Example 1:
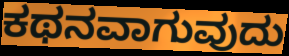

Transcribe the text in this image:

ಕಥನವಾಗುವುದು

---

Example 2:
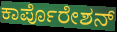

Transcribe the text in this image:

ಕಾರ್ಪೊರೇಶನ್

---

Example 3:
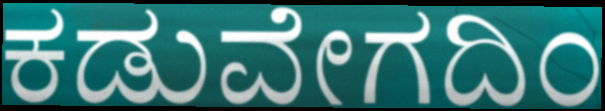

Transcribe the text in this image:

ಕಡುವೇಗದಿಂ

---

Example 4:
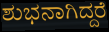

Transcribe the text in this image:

ಶುಭನಾಗಿದ್ದರೆ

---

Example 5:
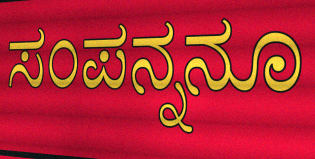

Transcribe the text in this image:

ಸಂಪನ್ನನೂ